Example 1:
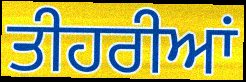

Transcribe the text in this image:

ਤੀਹਰੀਆਂ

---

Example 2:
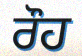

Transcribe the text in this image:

ਰੌਹ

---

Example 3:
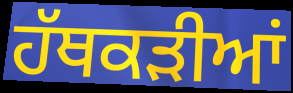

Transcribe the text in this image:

ਹੱਥਕੜੀਆਂ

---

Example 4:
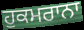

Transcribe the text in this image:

ਹੁਕਮਰਾਨਾ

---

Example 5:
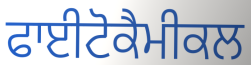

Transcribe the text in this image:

ਫਾਈਟੋਕੈਮੀਕਲ